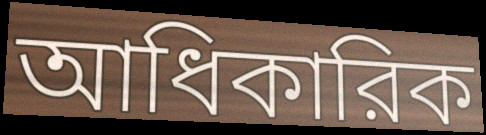
আধিকারিক